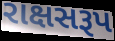
રાક્ષસરૂપ